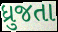
ધ્રુજતા